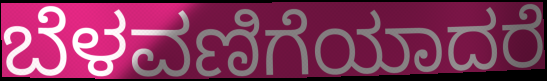
ಬೆಳವಣಿಗೆಯಾದರೆ